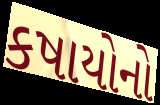
કષાયોનો